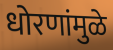
धोरणांमुळे